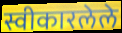
स्वीकारलेले